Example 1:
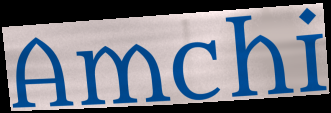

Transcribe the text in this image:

Amchi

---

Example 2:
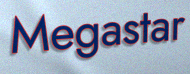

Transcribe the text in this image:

Megastar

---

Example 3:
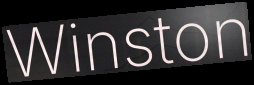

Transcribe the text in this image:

Winston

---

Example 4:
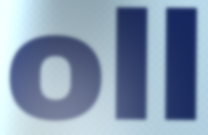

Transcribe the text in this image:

oll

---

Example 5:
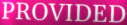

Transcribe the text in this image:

PROVIDED